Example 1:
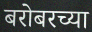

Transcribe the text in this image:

बरोबरच्या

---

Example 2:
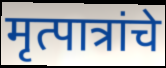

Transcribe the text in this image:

मृत्पात्रांचे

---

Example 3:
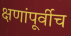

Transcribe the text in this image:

क्षणांपूर्वीच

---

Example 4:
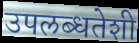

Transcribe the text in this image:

उपलब्धतेशी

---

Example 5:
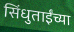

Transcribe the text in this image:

सिंधुताईंच्या